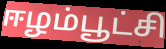
ஈழம்பூட்சி